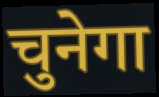
चुनेगा